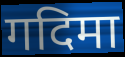
गदिमा